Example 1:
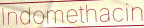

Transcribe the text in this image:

Indomethacin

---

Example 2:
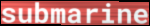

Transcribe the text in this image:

submarine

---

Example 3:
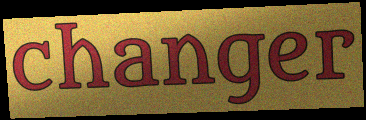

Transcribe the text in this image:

changer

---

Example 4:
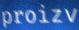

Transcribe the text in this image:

proizv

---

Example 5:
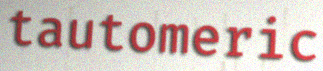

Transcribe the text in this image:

tautomeric